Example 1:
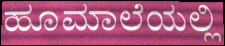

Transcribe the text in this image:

ಹೂಮಾಲೆಯಲ್ಲಿ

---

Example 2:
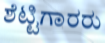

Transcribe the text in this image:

ಶೆಟ್ಟಿಗಾರರು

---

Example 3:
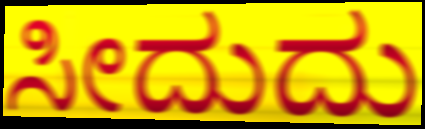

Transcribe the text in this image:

ಸೀದುದು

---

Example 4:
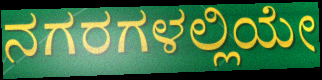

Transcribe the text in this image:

ನಗರಗಳಲ್ಲಿಯೇ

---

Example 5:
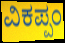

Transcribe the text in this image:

ವಿಕಪ್ಪಂ